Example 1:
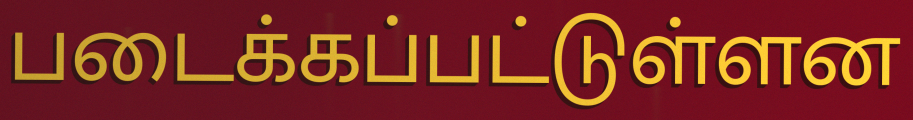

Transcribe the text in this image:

படைக்கப்பட்டுள்ளன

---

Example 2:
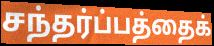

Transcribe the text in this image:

சந்தர்ப்பத்தைக்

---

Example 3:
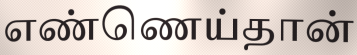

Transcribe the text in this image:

எண்ணெய்தான்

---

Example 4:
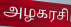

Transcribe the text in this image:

அழகரசி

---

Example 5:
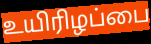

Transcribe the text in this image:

உயிரிழப்பை